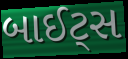
બાઈટ્સ